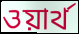
ওয়ার্থ